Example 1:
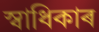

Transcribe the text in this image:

স্বাধিকাৰ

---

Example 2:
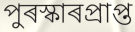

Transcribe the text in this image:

পুৰস্কাৰপ্ৰাপ্ত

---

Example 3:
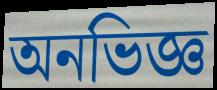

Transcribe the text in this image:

অনভিজ্ঞ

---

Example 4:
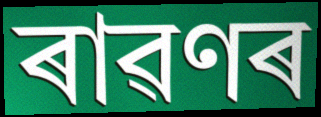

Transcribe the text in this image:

ৰাৱণৰ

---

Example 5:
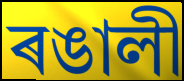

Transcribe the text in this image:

ৰঙালী